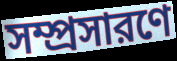
সম্প্রসারণে